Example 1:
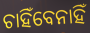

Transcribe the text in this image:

ଚାହିଁବେନାହିଁ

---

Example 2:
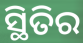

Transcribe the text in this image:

ସ୍ଥିତିର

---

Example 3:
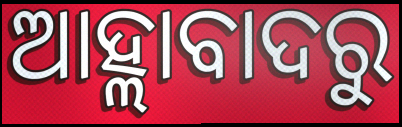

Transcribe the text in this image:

ଆହ୍ଲାବାଦରୁ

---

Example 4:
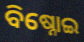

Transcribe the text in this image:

ବିଷ୍ନୋଇ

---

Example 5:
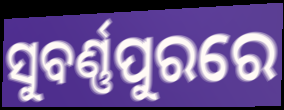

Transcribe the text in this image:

ସୁବର୍ଣ୍ଣପୁରରେ